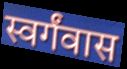
स्वर्गंवास